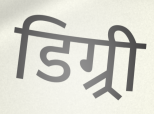
डिग्र्री